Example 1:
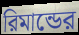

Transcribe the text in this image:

রিমান্ডের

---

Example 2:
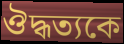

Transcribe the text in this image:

ঔদ্ধত্যকে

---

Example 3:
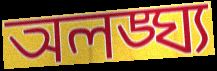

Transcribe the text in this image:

অলঙ্ঘ্য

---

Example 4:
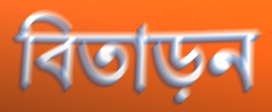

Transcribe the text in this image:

বিতাড়ন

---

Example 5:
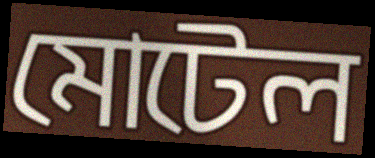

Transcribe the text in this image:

মোটেল